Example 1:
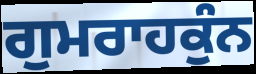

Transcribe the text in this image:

ਗੁਮਰਾਹਕੁੰਨ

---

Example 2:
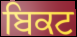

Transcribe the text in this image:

ਬਿਕਟ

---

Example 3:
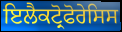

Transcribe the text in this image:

ਇਲੈਕਟ੍ਰੋਫੋਰੇਸਿਸ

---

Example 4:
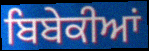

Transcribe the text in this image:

ਬਿਬੇਕੀਆਂ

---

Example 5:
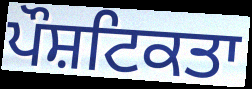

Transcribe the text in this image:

ਪੌਸ਼ਟਿਕਤਾ